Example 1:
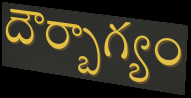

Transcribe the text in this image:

దౌర్బాగ్యం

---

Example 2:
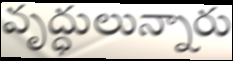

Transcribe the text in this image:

వృద్ధులున్నారు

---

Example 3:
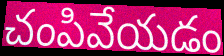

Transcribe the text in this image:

చంపివేయడం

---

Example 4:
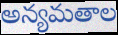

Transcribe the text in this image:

అన్యమతాల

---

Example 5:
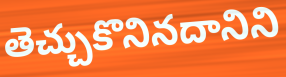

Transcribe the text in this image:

తెచ్చుకొనినదానిని